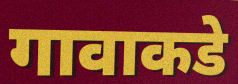
गावाकडे